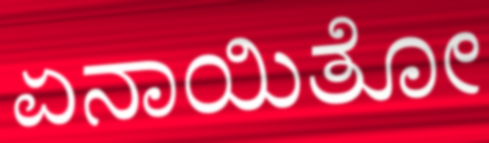
ಏನಾಯಿತೋ